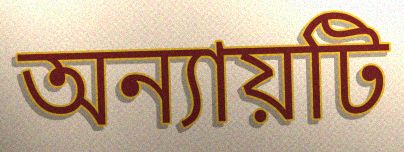
অন্যায়টি